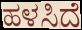
ಹಳಸಿದೆ